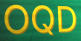
OQD